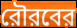
রৌরবের